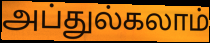
அப்துல்கலாம்